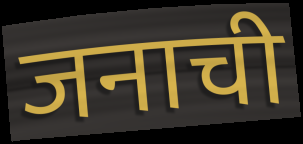
जनाची